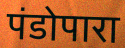
पंडोपारा